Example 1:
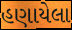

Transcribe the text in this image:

હણાયેલા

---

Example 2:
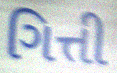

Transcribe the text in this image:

ગિત્તી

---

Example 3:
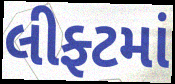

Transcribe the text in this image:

લીફ્ટમાં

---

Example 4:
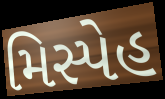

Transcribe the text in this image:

મિસ્પેહ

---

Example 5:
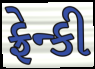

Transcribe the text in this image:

ફ્રેન્કી